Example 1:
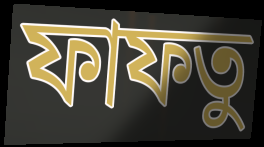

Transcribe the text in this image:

ফাফতু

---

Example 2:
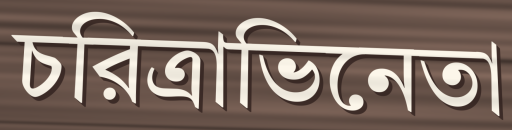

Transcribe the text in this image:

চরিত্রাভিনেতা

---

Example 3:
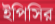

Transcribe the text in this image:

ইপিসির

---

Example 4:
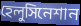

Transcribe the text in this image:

হেলুসিনেশান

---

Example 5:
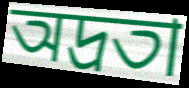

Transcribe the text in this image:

অদ্রতা